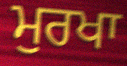
ਮੁਰਖਾ